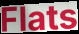
Flats